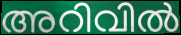
അറിവിൽ